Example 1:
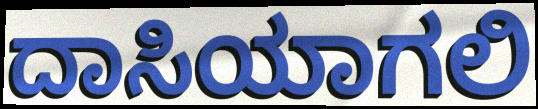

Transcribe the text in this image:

ದಾಸಿಯಾಗಲಿ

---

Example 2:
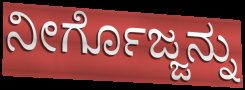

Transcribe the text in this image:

ನೀರ್ಗೊಜ್ಜನ್ನು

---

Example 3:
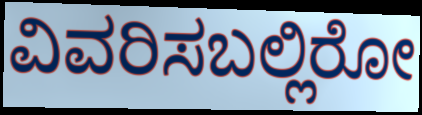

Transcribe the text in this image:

ವಿವರಿಸಬಲ್ಲಿರೋ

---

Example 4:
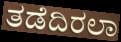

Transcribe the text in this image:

ತಡೆದಿರಲಾ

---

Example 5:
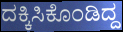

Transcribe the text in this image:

ದಕ್ಕಿಸಿಕೊಂಡಿದ್ದ